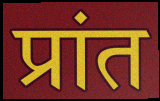
प्रांत